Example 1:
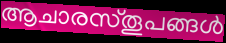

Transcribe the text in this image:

ആചാരസ്തൂപങ്ങൾ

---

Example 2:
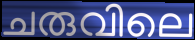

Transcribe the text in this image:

ചരുവിലെ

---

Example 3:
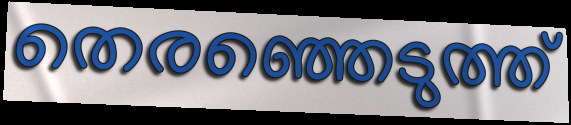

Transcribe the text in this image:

തെരഞ്ഞെടുത്ത്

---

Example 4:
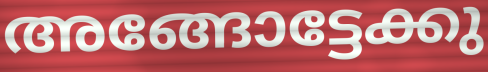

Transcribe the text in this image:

അങ്ങോട്ടേക്കു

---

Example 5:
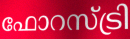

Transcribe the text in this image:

ഫോറസ്ട്രി